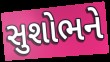
સુશોભને